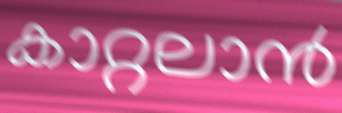
കാറ്റലാൻ